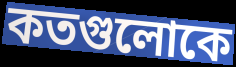
কতগুলোকে